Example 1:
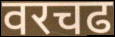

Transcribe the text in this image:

वरचढ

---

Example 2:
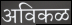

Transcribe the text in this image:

अविकळ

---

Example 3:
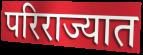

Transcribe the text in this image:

परिराज्यात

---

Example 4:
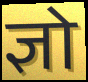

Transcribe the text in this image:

ज्ञो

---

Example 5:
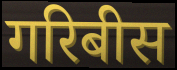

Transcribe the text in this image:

गरिबीस